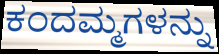
ಕಂದಮ್ಮಗಳನ್ನು